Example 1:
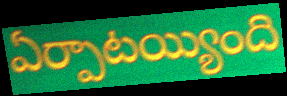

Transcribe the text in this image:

ఏర్పాటయ్యింది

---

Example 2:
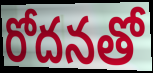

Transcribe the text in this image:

రోదనతో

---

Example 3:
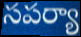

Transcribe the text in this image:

సపర్యా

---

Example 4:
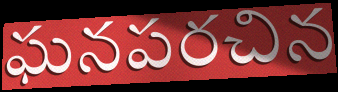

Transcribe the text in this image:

ఘనపరచిన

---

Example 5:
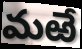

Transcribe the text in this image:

మఱే